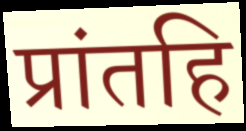
प्रांतहि